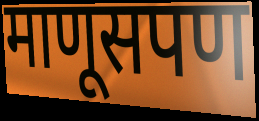
माणूसपण